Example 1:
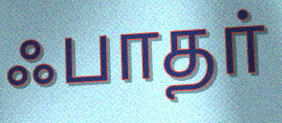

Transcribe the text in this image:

ஃபாதர்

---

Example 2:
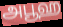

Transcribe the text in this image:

அபூஹ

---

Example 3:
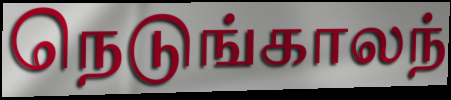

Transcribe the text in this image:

நெடுங்காலந்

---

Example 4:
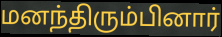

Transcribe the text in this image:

மனந்திரும்பினார்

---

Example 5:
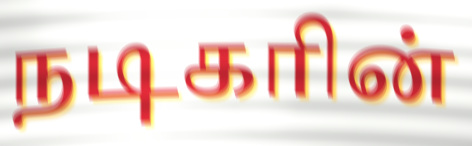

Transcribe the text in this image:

நடிகரின்